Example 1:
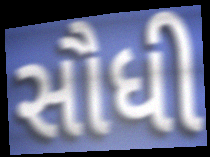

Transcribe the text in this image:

સૌધી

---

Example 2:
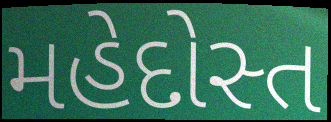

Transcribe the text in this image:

મહેદોસ્ત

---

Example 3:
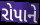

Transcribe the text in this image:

રોપાને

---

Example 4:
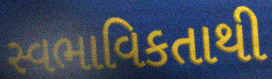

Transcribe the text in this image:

સ્વભાવિકતાથી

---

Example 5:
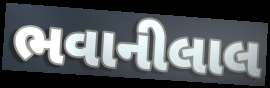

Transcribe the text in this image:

ભવાનીલાલ